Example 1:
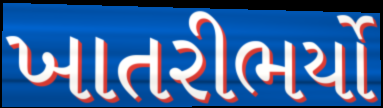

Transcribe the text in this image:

ખાતરીભર્યો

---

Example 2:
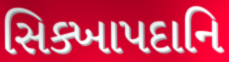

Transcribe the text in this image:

સિક્ખાપદાનિ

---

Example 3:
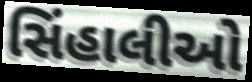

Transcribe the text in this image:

સિંહાલીઓ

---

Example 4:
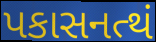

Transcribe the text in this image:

પકાસનત્થં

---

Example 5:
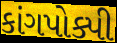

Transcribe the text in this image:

કાંગપોક્પી